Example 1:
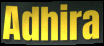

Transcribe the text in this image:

Adhira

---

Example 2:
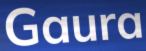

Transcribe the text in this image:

Gaura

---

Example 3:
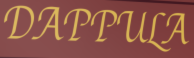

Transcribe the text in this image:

DAPPULA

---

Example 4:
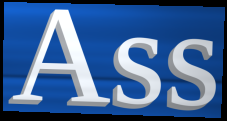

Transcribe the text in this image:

Ass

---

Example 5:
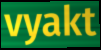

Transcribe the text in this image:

vyakt